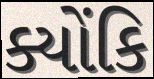
ક્યોંકિ